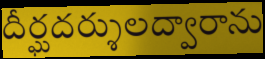
దీర్ఘదర్శులద్వారాను